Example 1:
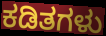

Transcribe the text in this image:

ಕಡಿತಗಳು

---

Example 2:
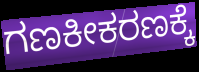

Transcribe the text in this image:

ಗಣಕೀಕರಣಕ್ಕೆ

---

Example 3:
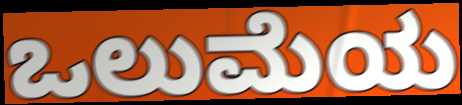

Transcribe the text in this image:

ಒಲುಮೆಯ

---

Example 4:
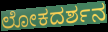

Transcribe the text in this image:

ಲೋಕದರ್ಶನ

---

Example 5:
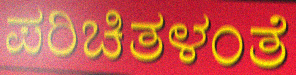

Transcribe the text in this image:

ಪರಿಚಿತಳಂತೆ